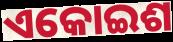
ଏକୋଇଶ